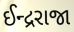
ઈન્દ્રરાજા